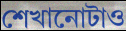
শেখানোটাও